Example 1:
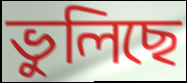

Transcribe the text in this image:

ভুলিছে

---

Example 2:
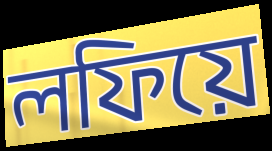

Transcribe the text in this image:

লফিয়ে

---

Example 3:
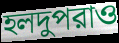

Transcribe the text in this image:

হলদুপরাও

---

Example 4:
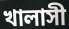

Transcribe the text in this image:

খালাসী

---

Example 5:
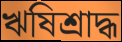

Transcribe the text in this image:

ঋষিশ্রাদ্ধ